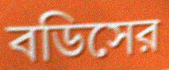
বডিসের